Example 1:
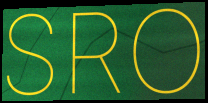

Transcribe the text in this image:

SRO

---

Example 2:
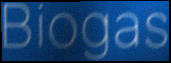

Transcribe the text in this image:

Biogas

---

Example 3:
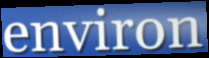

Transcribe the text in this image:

environ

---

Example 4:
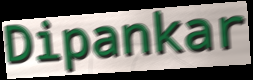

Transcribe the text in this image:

Dipankar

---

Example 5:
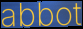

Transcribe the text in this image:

abbot